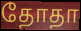
தோதா